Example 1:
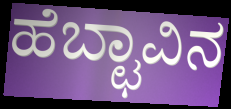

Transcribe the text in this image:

ಹೆಬ್ಟಾವಿನ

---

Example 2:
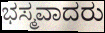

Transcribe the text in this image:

ಭಸ್ಮವಾದರು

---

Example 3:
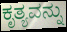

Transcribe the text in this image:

ಕೃತ್ಯವನ್ನು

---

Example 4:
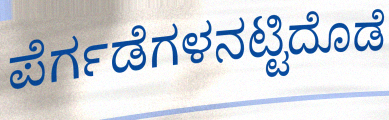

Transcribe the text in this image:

ಪೆರ್ಗಡೆಗಳನಟ್ಟಿದೊಡೆ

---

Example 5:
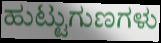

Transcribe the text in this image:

ಹುಟ್ಟುಗುಣಗಳು